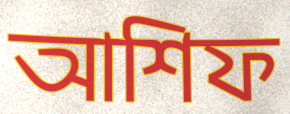
আশিফ